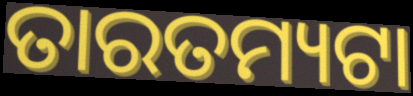
ତାରତମ୍ୟଟା